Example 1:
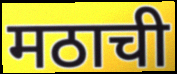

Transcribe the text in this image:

मठाची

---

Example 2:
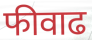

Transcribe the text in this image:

फीवाढ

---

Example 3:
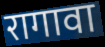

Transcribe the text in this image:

रागावा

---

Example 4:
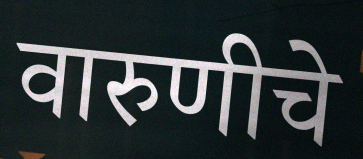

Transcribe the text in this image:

वारुणीचे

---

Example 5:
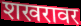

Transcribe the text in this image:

शखरावर